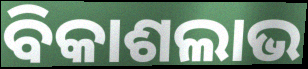
ବିକାଶଲାଭ